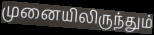
முனையிலிருந்தும்